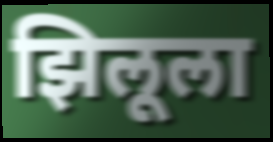
झिलूला